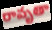
రావృతా